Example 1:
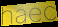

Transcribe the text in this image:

haec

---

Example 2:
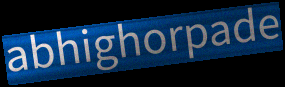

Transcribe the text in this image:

abhighorpade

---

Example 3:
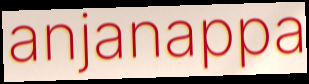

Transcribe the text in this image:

anjanappa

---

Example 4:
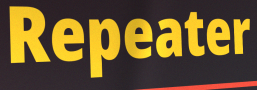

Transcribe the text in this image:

Repeater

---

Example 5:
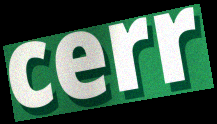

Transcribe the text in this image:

cerr